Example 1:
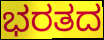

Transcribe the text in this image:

ಭರತದ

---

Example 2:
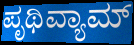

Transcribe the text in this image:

ಪೃಥಿವ್ಯಾಮ್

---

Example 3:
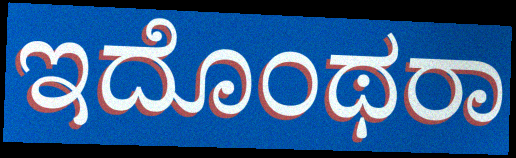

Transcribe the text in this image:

ಇದೊಂಥರಾ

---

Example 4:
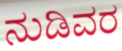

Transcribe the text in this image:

ನುಡಿವರ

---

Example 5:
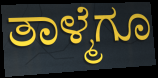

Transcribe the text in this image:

ತಾಳ್ಮೆಗೂ